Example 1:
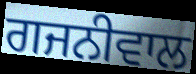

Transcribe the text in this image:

ਗਜਨੀਵਾਲ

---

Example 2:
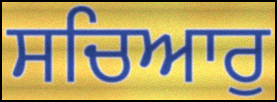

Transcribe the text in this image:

ਸਚਿਆਰੁ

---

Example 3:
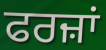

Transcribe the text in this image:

ਫਰਜ਼ਾਂ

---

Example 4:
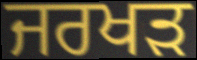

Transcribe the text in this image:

ਜਰਖੜ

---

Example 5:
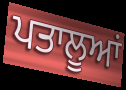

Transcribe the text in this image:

ਪਤਾਲੂਆਂ